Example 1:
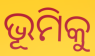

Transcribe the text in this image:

ଭୂମିକୁ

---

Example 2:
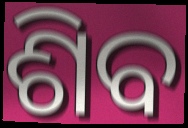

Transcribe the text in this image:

ଶିବ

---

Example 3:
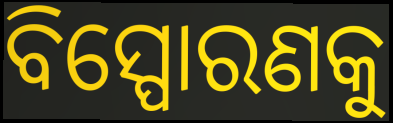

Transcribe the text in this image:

ବିସ୍ପୋରଣକୁ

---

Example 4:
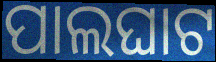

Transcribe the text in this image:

ପାଲଘାଟ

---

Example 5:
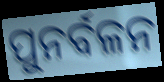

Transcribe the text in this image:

ପୁନର୍ବଳନ